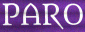
PARO